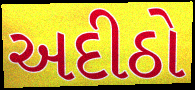
અદીઠો